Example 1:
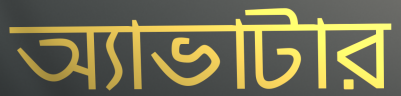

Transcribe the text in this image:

অ্যাভাটার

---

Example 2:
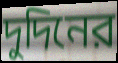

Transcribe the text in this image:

দুদিনের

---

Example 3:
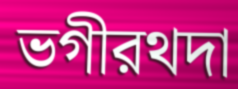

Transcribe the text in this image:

ভগীরথদা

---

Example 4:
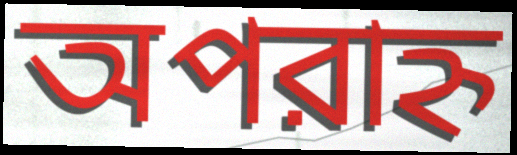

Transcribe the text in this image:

অপরাহ্ন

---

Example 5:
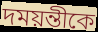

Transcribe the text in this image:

দময়ন্তীকে